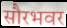
सौरभवर